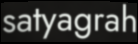
satyagrah